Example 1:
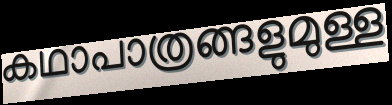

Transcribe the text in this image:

കഥാപാത്രങ്ങളുമുള്ള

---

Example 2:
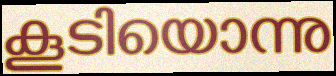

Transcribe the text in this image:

കൂടിയൊന്നു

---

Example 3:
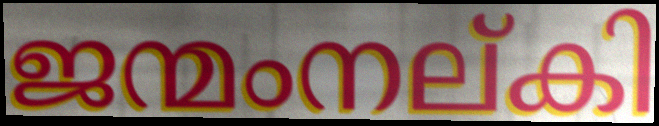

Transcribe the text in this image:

ജന്മംനല്കി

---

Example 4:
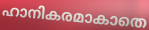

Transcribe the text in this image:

ഹാനികരമാകാതെ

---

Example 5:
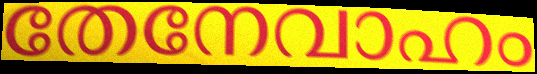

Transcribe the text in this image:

തേനേവാഹം